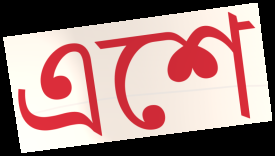
এশে